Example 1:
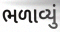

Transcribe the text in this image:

ભળાવ્યું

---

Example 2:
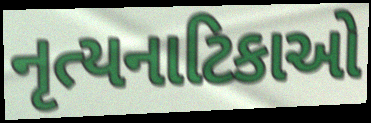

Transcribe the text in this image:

નૃત્યનાટિકાઓ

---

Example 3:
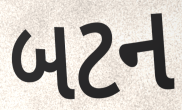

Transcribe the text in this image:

બટન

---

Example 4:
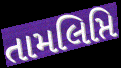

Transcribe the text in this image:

તામલિપ્તિ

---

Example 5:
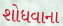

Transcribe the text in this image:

શોધવાના